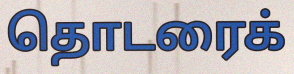
தொடரைக்